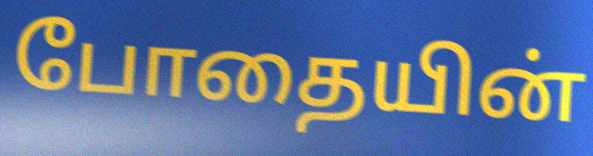
போதையின்